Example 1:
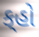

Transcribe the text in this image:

ક્‌હો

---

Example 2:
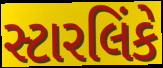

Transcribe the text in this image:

સ્ટારલિંકે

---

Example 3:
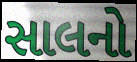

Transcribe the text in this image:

સાલનો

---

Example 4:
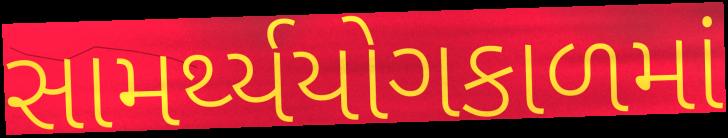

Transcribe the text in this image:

સામર્થ્યયોગકાળમાં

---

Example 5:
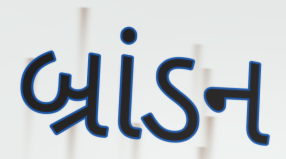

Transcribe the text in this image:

બ્રાંડન